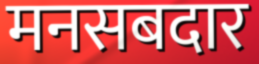
मनसबदार